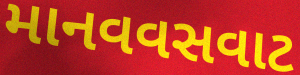
માનવવસવાટ